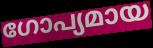
ഗോപ്യമായ